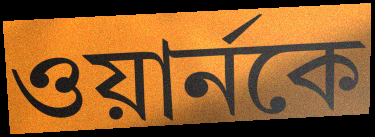
ওয়ার্নকে